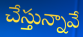
చేస్తున్నావే